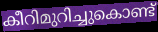
കീറിമുറിച്ചുകൊണ്ട്